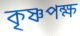
কৃষ্ণপক্ষ